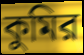
কুমির